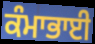
ਕੰਮਾਭਾਈ